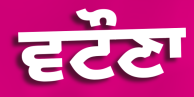
ਵਟੌਣਾ